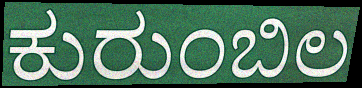
ಕುರುಂಬಿಲ